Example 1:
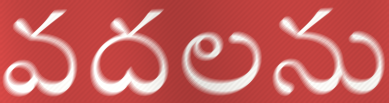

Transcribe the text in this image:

వదలను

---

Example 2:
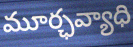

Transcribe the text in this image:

మూర్ఛవ్యాధి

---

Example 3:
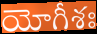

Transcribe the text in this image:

యోగీశః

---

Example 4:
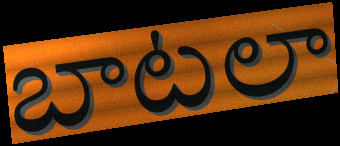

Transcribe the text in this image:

బాటలా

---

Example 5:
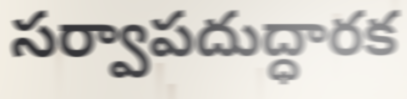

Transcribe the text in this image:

సర్వాపదుద్ధారక